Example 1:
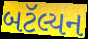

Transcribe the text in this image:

બટૅલ્યન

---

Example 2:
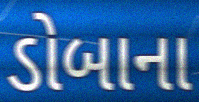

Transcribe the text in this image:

ડોબાના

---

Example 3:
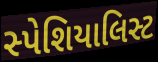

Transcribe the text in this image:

સ્પેશિયાલિસ્ટ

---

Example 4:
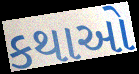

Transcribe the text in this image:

કથાઓ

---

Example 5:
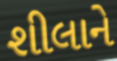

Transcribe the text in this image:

શીલાને